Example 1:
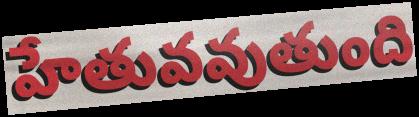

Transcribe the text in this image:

హేతువవుతుంది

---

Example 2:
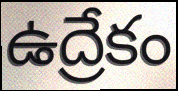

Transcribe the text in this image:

ఉద్రేకం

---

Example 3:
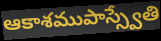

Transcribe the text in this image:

ఆకాశముపాస్స్వేతి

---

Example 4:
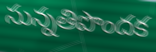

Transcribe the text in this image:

సున్నతిపొందక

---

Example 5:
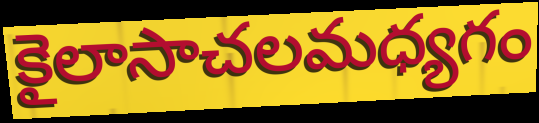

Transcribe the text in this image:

కైలాసాచలమధ్యగం